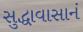
સુદ્ધાવાસાનં